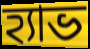
হ্যাভ